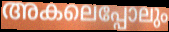
അകലെപ്പോലും